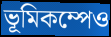
ভূমিকম্পেও